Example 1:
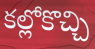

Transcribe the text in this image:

కల్లోకొచ్చి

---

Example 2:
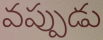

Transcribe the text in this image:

వప్పుడు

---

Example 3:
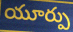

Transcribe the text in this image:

యూర్పు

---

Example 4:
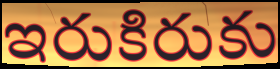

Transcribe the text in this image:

ఇరుకిరుకు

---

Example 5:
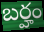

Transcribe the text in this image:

బర్హం